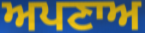
ਅਪਣਾਅ